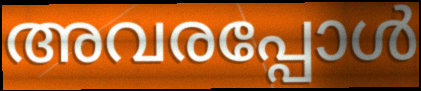
അവരപ്പോൾ